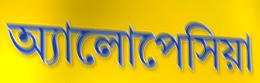
অ্যালোপেসিয়া